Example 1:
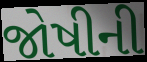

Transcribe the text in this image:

જોષીની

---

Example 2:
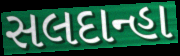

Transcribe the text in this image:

સલદાન્હા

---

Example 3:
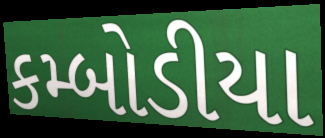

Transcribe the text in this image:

કમ્બોડીયા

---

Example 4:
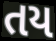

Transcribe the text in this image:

તય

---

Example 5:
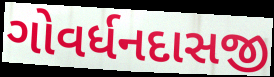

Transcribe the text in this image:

ગોવર્ધનદાસજી